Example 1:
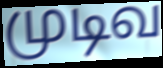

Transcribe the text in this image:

முடிவ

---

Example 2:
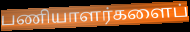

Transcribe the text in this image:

பணியாளர்களைப்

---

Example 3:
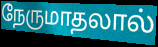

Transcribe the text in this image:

நேருமாதலால்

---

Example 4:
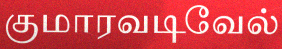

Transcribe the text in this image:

குமாரவடிவேல்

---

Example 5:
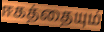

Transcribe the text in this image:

ஈகத்தையும்